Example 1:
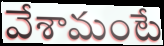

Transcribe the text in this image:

వేశామంటే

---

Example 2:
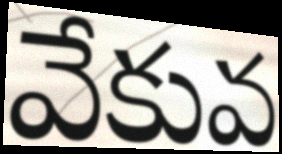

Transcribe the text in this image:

వేకువ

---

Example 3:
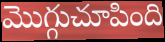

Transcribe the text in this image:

మొగ్గుచూపింది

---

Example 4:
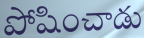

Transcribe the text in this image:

పోషించాడు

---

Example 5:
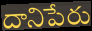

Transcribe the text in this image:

దానిపేరు